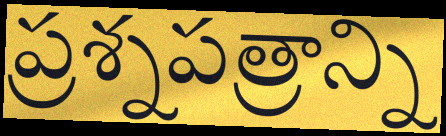
ప్రశ్నపత్రాన్ని